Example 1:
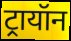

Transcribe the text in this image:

ट्रायॉन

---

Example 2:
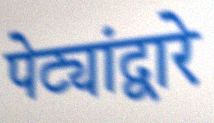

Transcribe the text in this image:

पेट्यांद्वारे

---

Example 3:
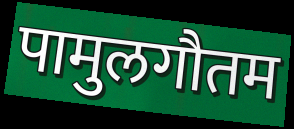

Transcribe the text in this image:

पामुलगौतम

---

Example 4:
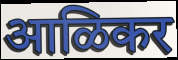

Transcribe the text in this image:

आळिकर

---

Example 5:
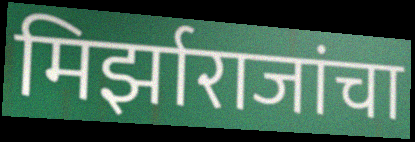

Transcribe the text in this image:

मिर्झाराजांचा